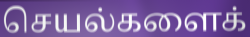
செயல்களைக்